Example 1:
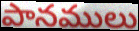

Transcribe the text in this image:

పానములు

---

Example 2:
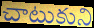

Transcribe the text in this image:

చాటుకుని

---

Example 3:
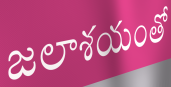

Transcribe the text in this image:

జలాశయంతో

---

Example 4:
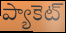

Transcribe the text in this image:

ప్యాకెట్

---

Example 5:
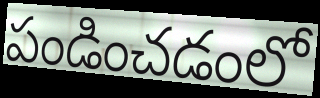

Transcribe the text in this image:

పండించడంలో